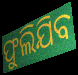
ଫୁଲିଯିବ